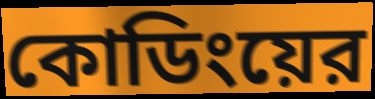
কোডিংয়ের